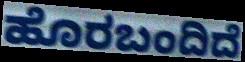
ಹೊರಬಂದಿದೆ